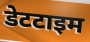
डेटटाइम